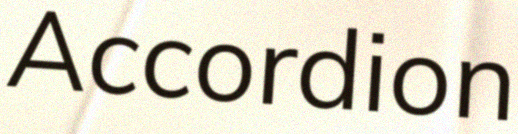
Accordion